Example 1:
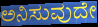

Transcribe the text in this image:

ಅನಿಸುವುದೇ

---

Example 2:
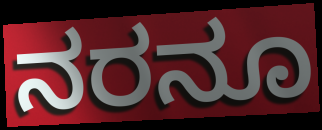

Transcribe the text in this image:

ನರನೂ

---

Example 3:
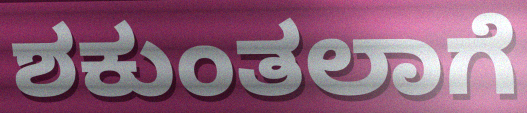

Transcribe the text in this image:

ಶಕುಂತಲಾಗೆ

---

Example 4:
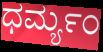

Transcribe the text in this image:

ಧರ್ಮ್ಯಂ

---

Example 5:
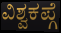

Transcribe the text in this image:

ವಿಶ್ವಕಪ್ಗೆ